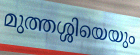
മുത്തശ്ശിയെയും